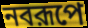
নবরূপে